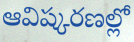
ఆవిష్కరణల్లో